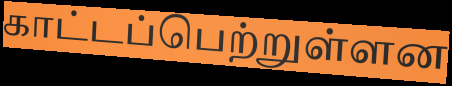
காட்டப்பெற்றுள்ளன